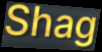
Shag